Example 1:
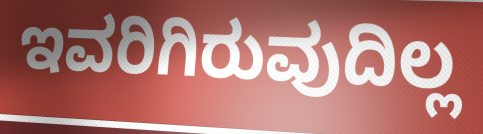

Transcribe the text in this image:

ಇವರಿಗಿರುವುದಿಲ್ಲ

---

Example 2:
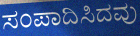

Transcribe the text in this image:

ಸಂಪಾದಿಸಿದವು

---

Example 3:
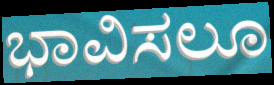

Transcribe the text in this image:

ಭಾವಿಸಲೂ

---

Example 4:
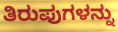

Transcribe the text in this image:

ತಿರುಪುಗಳನ್ನು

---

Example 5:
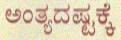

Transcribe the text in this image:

ಅಂತ್ಯದಷ್ಟಕ್ಕೆ